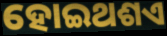
ହୋଇଥଶଏ